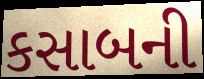
કસાબની